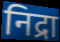
निद्रा